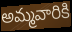
అమ్మవారికి